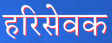
हरिसेवक